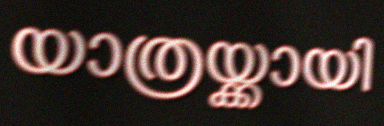
യാത്രയ്ക്കായി